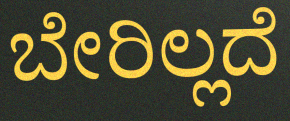
ಬೇರಿಲ್ಲದೆ